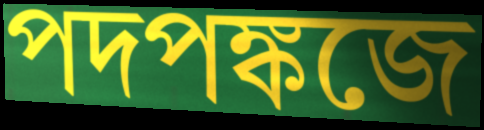
পদপঙ্কজে